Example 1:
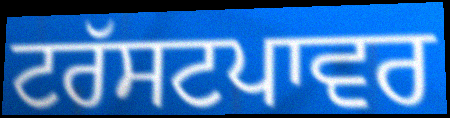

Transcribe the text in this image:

ਟਰੱਸਟਪਾਵਰ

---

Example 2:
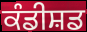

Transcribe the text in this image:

ਕੰਡੀਸ਼ਡ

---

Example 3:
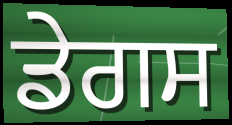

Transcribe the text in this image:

ਡੇਗਸ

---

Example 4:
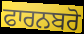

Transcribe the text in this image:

ਫਾਰਨਬਰੋ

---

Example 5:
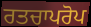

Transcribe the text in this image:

ਰਤਚਾਪਰੋਪ